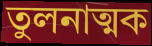
তুলনাত্মক